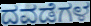
ದವಡೆಗಳ